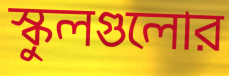
স্কুলগুলোর